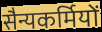
सैन्यकर्मियों